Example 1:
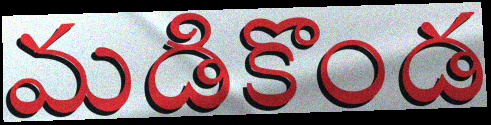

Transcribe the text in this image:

మడికొండ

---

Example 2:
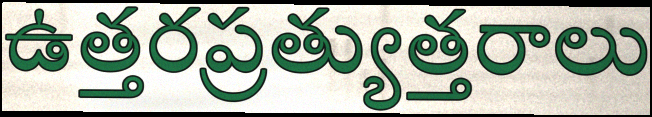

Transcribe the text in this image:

ఉత్తరప్రత్యుత్తరాలు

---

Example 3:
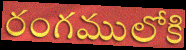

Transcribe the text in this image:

రంగములోకి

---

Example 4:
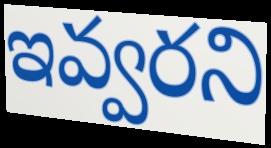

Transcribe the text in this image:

ఇవ్వరని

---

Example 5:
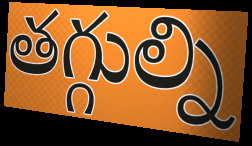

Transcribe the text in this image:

తగ్గుల్ని